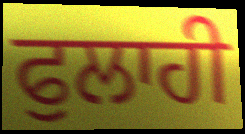
ਫੁਲਾਹੀ